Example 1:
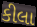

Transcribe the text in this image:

કીલા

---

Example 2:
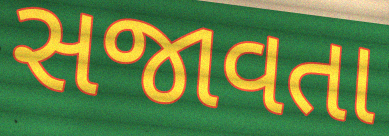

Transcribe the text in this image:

સજાવતા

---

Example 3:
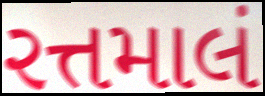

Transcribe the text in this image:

રત્તમાલં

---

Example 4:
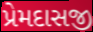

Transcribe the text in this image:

પ્રેમદાસજી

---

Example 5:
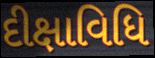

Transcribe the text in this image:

દીક્ષાવિધિ